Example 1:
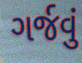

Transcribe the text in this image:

ગર્જવું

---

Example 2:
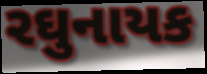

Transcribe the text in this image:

રઘુનાયક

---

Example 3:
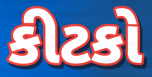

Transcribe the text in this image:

કીટકો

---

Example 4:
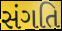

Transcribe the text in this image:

સંગતિ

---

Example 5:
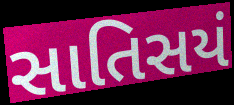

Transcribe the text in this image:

સાતિસયં